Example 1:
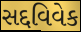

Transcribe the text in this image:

સદ્દવિવેક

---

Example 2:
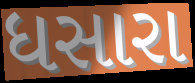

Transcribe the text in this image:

ધસારા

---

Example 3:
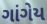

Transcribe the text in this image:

ગાંગેય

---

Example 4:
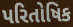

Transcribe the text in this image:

પરિતોષિક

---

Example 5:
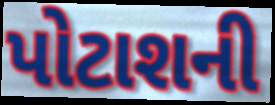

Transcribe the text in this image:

પોટાશની